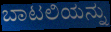
ಬಾಟಲಿಯನ್ನು